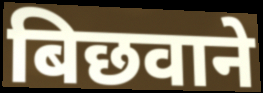
बिछवाने